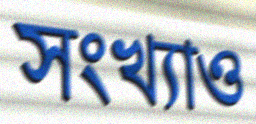
সংখ্যাও